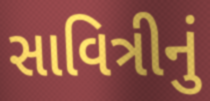
સાવિત્રીનું